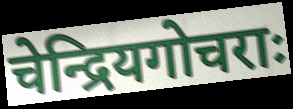
चेन्द्रियगोचराः